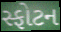
સ્ફોટન